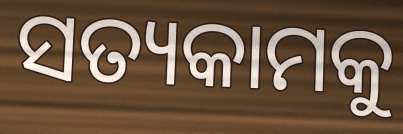
ସତ୍ୟକାମକୁ